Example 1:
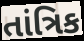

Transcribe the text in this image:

તાંત્રિક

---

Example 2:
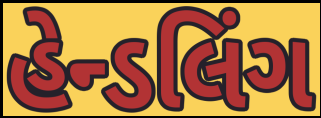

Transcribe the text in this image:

હેન્ડલિંગ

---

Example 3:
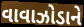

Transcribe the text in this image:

વાવાઝોડાને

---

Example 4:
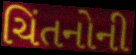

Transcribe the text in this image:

ચિંતનોની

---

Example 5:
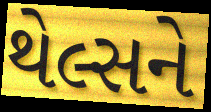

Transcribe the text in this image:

થેલ્સને